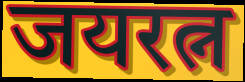
जयरत्न